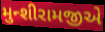
મુન્શીરામજીએ